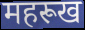
महरूख